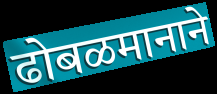
ढोबळमानाने